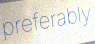
preferably